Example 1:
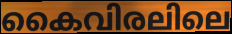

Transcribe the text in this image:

കൈവിരലിലെ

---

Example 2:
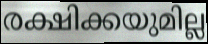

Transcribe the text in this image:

രക്ഷിക്കയുമില്ല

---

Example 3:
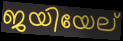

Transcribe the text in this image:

ജയിയേല്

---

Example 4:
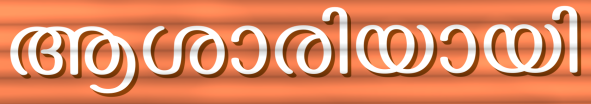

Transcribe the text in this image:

ആശാരിയായി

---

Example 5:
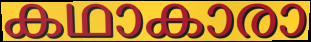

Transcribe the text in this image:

കഥാകാരാ